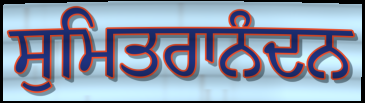
ਸੁਮਿਤਰਾਨੰਦਨ